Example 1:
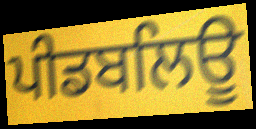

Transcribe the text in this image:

ਪੀਡਬਲਿਊ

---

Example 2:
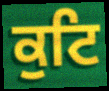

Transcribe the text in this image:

ਕੁਟਿ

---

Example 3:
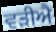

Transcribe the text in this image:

ਵੜੀਐ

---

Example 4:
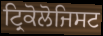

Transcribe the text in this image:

ਟ੍ਰਿਕੋਲੋਜਿਸਟ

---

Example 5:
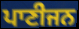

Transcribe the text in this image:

ਪਾਣੀਜਨ